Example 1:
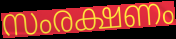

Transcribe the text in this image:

സംരക്ഷണം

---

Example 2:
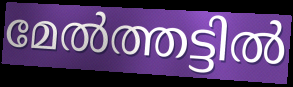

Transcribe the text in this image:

മേൽത്തട്ടിൽ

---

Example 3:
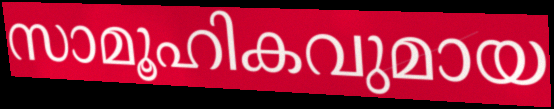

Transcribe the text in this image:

സാമൂഹികവുമായ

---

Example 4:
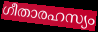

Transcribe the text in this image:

ഗീതാരഹസ്യം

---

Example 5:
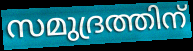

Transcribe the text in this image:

സമുദ്രത്തിന്